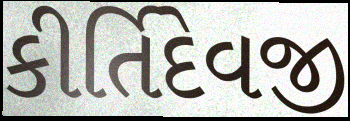
કીર્તિદેવજી